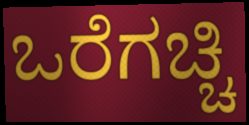
ಒರೆಗಚ್ಚಿ